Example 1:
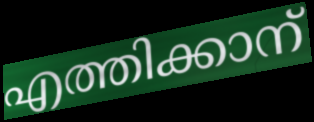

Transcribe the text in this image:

എത്തിക്കാന്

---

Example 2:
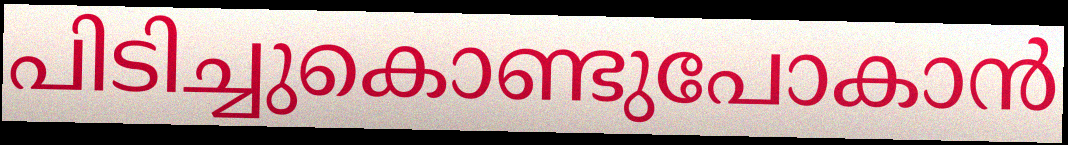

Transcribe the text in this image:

പിടിച്ചുകൊണ്ടുപോകാൻ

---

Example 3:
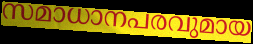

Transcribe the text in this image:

സമാധാനപരവുമായ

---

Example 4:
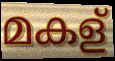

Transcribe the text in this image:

മകള്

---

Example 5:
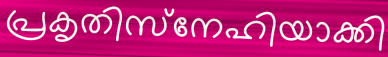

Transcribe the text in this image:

പ്രകൃതിസ്‌നേഹിയാക്കി